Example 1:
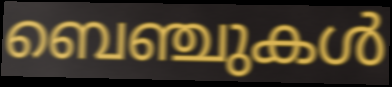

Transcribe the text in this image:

ബെഞ്ചുകൾ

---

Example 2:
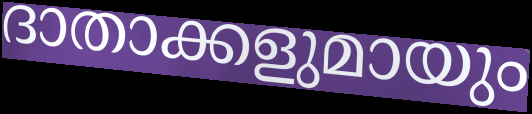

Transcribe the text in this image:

ദാതാക്കളുമായും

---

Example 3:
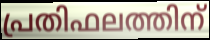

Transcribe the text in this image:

പ്രതിഫലത്തിന്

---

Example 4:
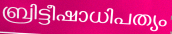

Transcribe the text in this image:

ബ്രിട്ടീഷാധിപത്യം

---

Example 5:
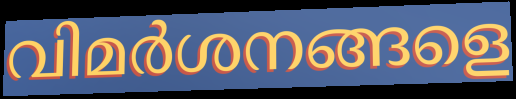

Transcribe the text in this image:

വിമർശനങ്ങളെ